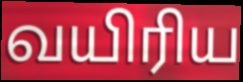
வயிரிய